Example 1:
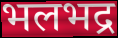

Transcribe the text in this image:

भलभद्र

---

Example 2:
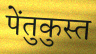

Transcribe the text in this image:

पेंतुकुस्त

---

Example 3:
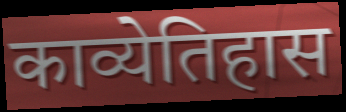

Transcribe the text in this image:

काव्येतिहास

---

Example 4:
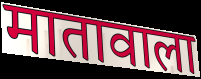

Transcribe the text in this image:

मातावाला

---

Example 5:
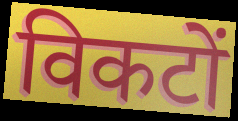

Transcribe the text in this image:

विकटों